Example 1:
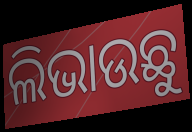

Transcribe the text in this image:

ଲିଭାଉଛୁ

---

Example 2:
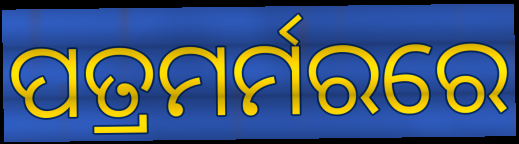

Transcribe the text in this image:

ପତ୍ରମର୍ମରରେ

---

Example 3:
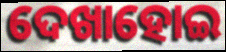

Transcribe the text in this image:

ଦେଖାହୋଇ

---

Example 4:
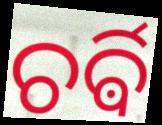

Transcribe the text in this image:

ଚର୍ଵି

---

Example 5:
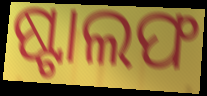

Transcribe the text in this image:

ଷ୍ଟାଲଫ